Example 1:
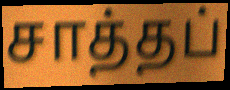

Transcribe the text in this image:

சாத்தப்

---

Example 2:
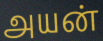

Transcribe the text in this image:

அயன்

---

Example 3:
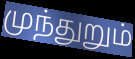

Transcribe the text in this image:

முந்துறும்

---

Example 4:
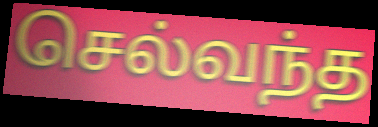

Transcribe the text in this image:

செல்வந்த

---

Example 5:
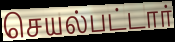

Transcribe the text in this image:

செயல்பட்டார்